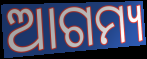
ଆଗମ୍ୟ